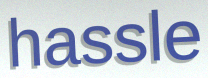
hassle